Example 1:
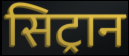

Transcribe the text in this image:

सिट्रान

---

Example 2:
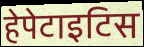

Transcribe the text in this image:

हेपेटाइटिस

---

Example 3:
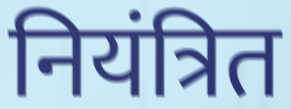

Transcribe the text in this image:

नियंत्रित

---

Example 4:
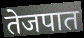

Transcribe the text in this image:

तेजपात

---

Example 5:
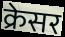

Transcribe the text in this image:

क्रेसर